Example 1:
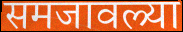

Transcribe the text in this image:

समजावल्या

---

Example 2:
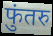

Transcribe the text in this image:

फुंतरु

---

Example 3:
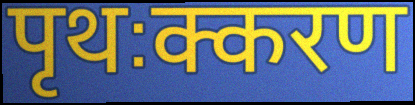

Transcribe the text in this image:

पृथःक्करण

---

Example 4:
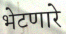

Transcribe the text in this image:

भेटणारे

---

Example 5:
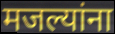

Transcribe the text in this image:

मजल्यांना